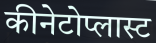
कीनेटोप्लास्ट